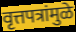
वृत्तपत्रांमुळे